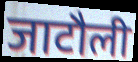
जाटौली